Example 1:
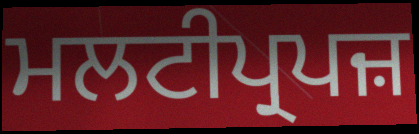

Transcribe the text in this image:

ਮਲਟੀਪ੍ਰਪਜ਼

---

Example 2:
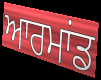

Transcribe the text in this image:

ਆਰਮਾਂਡ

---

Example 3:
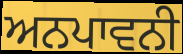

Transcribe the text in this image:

ਅਨਪਾਵਨੀ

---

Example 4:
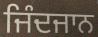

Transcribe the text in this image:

ਜਿੰਦਜਾਨ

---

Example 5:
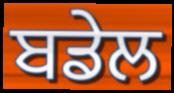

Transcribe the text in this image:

ਬਡੇਲ